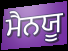
ਮੈਨਯੂ